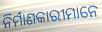
ନିର୍ମାଣକାରୀମାନେ